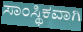
ಸಾಂಸ್ಥಿಕವಾಗಿ